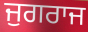
ਜੁਗਰਾਜ